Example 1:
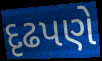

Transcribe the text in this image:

દૃઢપણે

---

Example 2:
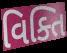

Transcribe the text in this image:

વિક્તિ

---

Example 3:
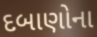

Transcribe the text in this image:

દબાણોના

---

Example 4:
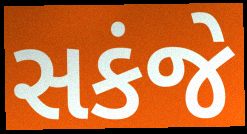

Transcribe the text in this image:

સકંજે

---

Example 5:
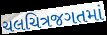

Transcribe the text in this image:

ચલચિત્રજગતમાં